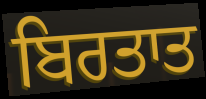
ਬਿਰਤਾਤ